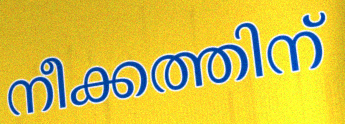
നീക്കത്തിന്